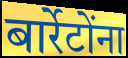
बार्रेटोंना